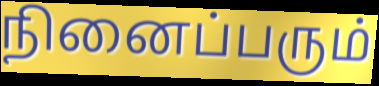
நினைப்பரும்